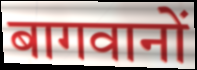
बागवानों